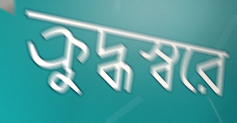
ক্রুদ্ধস্বরে